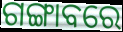
ଗଙ୍ଗାବରେ